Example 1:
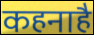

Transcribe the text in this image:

कहनाहै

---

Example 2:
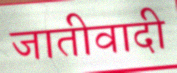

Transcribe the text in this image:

जातीवादी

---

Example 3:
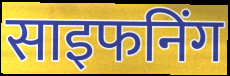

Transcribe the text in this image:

साइफनिंग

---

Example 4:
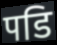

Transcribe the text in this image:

पडि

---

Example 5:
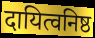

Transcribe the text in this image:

दायित्वनिष्ठ